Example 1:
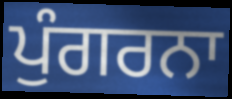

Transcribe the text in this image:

ਪੁੰਗਰਨਾ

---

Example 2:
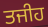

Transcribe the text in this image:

ਤਜੀਹ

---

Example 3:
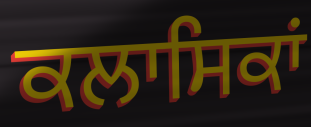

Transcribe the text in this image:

ਕਲਾਸਿਕਾਂ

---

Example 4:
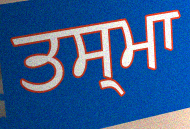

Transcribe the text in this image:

ਤਸ੍ਮਾ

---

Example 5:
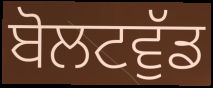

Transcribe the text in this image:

ਬੋਲਟਵੁੱਡ